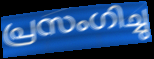
പ്രസംഗിച്ചു